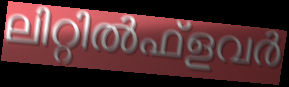
ലിറ്റിൽഫ്ളവർ